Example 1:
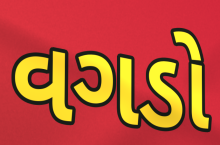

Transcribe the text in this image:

વગડો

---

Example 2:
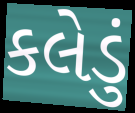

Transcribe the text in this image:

કલેડું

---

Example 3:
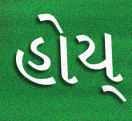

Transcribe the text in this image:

હોય્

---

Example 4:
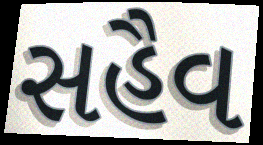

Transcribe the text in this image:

સહૈવ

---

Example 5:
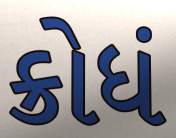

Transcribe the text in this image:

ક્રોધં